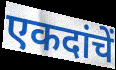
एकदांचें